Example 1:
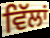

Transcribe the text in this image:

ਵਿੱਲਾਂ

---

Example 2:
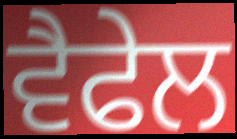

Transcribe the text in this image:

ਵੈਫੇਲ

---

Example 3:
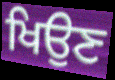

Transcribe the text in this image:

ਖਿਉਣ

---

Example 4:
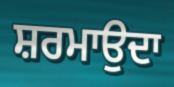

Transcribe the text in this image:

ਸ਼ਰਮਾਉਦਾ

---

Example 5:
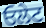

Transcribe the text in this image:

ਓਲੇਟ